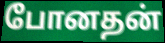
போனதன்